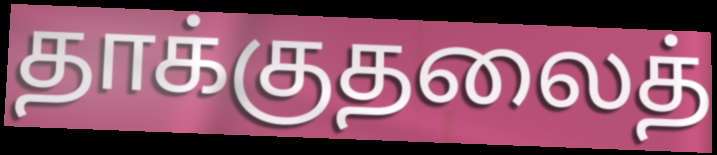
தாக்குதலைத்